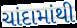
ચાંદામાંથી